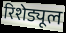
रिशेड्यूल